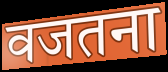
वजतना